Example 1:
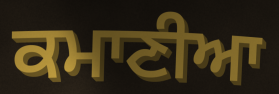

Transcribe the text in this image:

ਕਮਾਣੀਆ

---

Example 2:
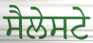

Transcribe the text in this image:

ਸੈਲੇਸਟੇ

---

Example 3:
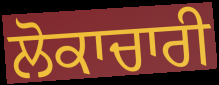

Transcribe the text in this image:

ਲੋਕਾਚਾਰੀ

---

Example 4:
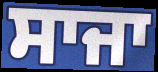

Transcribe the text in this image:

ਸਾਜਾ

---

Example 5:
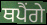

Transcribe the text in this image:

ਥਪੈਂਗੇ